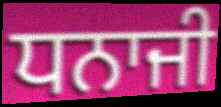
ਧਨਾਜੀ